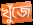
খুঁজে